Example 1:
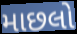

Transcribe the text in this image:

માછલો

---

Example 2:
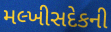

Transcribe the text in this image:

મલ્ખીસદેકની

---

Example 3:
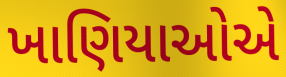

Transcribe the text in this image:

ખાણિયાઓએ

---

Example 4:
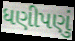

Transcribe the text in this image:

ધણીપણું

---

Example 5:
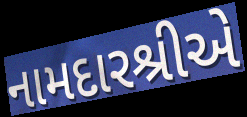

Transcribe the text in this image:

નામદારશ્રીએ